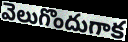
వెలుగొందుగాక